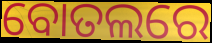
ବୋତଲରେ